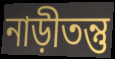
নাড়ীতন্তু